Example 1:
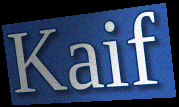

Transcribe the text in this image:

Kaif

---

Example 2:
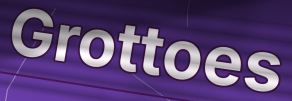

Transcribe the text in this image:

Grottoes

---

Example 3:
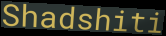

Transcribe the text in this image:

Shadshiti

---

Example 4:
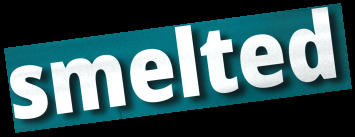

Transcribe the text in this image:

smelted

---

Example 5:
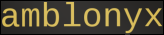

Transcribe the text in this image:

amblonyx